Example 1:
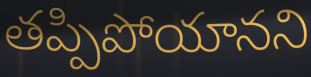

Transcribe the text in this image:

తప్పిపోయానని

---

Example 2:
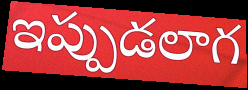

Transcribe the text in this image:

ఇప్పుడలాగ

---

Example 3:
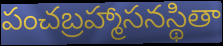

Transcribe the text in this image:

పంచబ్రహ్మాసనస్థితా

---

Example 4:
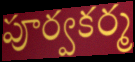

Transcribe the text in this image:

పూర్వకర్మ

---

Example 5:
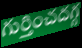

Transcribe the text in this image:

గుర్తించదగ్గ